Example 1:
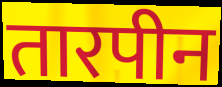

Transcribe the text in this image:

तारपीन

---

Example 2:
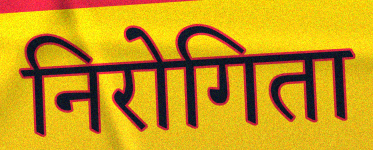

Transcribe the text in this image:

निरोगिता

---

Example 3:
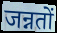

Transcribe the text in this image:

जन्नतों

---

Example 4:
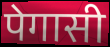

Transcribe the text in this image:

पेगासी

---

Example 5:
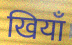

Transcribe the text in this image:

खियाँ